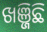
ଖଞ୍ଜିଛି